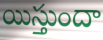
యిస్తుందా